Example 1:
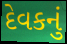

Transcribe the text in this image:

દેવકનું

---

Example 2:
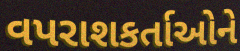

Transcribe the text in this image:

વપરાશકર્તાઓને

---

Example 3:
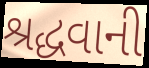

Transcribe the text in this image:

શ્રદ્ધવાની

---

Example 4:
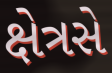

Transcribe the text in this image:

ક્ષેત્રસે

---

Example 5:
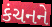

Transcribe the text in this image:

કંચનને